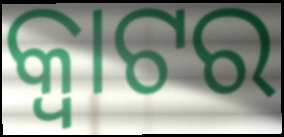
କ୍ୱାଟର